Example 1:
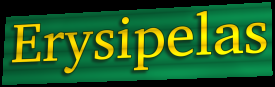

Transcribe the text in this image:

Erysipelas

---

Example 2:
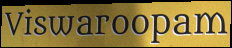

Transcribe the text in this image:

Viswaroopam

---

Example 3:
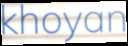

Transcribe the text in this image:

khoyan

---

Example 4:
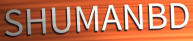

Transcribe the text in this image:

SHUMANBD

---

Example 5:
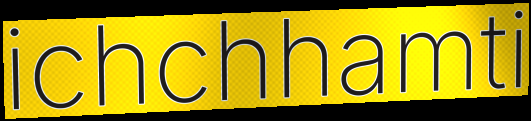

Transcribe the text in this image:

ichchhamti